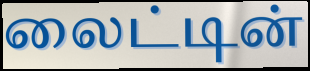
லைட்டின்